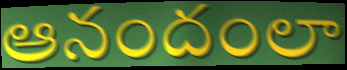
ఆనందంలా